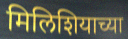
मिलिशियाच्या